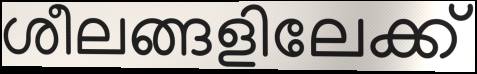
ശീലങ്ങളിലേക്ക്